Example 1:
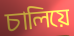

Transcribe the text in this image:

চালিয়ে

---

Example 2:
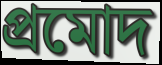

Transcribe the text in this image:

প্ৰমোদ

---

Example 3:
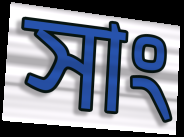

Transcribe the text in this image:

সাং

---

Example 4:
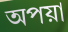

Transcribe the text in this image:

অপয়া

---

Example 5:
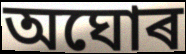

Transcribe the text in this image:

অঘোৰ